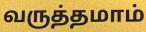
வருத்தமாம்